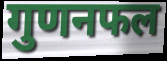
गुणनफल